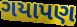
ગયાપણ